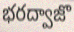
భరద్వాజొ